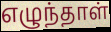
எழுந்தாள்